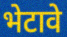
भेटावे